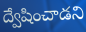
ద్వేషించాడని